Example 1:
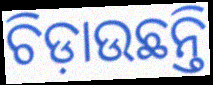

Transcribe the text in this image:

ଚିଡ଼ାଉଛନ୍ତି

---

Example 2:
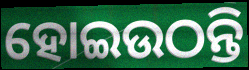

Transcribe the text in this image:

ହୋଇଉଠନ୍ତି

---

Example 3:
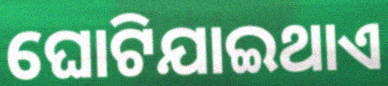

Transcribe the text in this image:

ଘୋଟିଯାଇଥାଏ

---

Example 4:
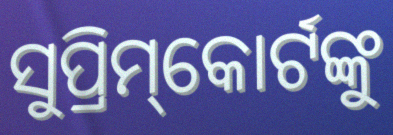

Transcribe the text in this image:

ସୁପ୍ରିମ୍‌କୋର୍ଟଙ୍କୁ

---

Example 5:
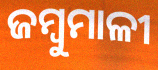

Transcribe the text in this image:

ଜମ୍ବୁମାଳୀ